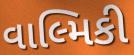
વાલ્મિકી